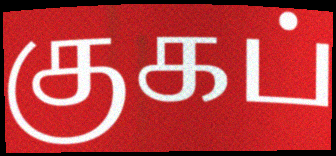
குகப்